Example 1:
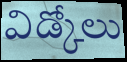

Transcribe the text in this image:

విడ్కోలు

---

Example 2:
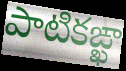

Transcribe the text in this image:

పాటికఙ్ఖా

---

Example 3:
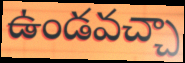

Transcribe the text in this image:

ఉండవచ్చా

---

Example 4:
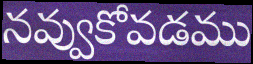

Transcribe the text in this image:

నవ్వుకోవడము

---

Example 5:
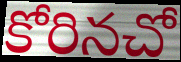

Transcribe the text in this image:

కోరినచో